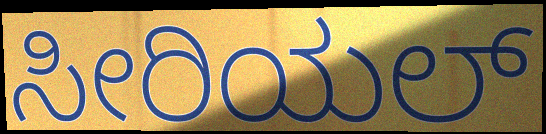
ಸೀರಿಯಲ್